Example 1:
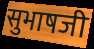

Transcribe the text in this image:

सुभाषजी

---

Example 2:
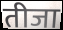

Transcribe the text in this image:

तीजा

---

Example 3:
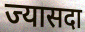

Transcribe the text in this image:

ज्यासदा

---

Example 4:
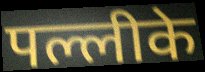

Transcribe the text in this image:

पल्लीके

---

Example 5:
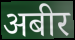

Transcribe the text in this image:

अबीर